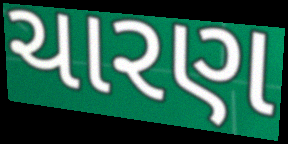
ચારણ